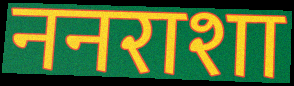
ननराशा